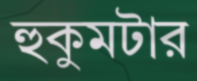
হুকুমটার